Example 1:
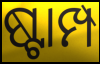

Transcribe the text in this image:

ଷ୍ଟାମ୍ପ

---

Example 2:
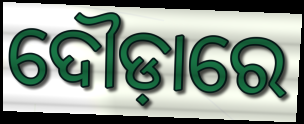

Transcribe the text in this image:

ଦୌଡ଼ାରେ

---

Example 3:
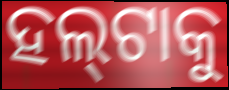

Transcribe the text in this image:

ହଲ୍‌ଟାକୁ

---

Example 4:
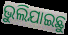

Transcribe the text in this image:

ଭୁଲିଯାଇଛୁ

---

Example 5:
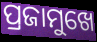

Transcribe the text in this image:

ପ୍ରଜାମୁଖେ